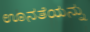
ಊನತೆಯನ್ನು